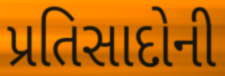
પ્રતિસાદોની